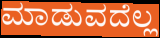
ಮಾಡುವದೆಲ್ಲ